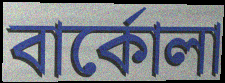
বার্কোলা